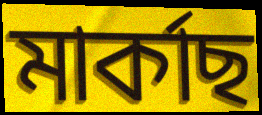
মাৰ্কাছ